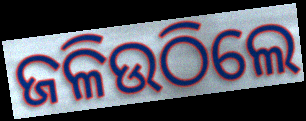
ଜଳିଉଠିଲେ